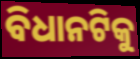
ବିଧାନଟିକୁ